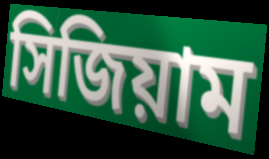
সিজিয়াম